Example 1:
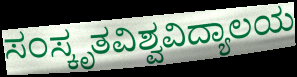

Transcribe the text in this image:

ಸಂಸ್ಕೃತವಿಶ್ವವಿದ್ಯಾಲಯ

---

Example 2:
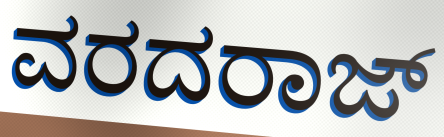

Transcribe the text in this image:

ವರದರಾಜ್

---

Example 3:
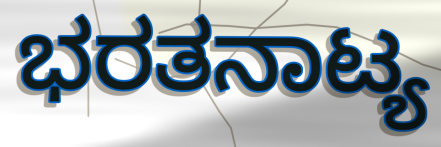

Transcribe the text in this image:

ಭರತನಾಟ್ಯ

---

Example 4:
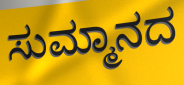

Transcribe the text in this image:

ಸುಮ್ಮಾನದ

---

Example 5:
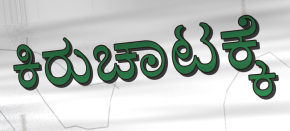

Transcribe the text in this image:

ಕಿರುಚಾಟಕ್ಕೆ